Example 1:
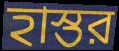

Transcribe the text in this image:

হাস্তর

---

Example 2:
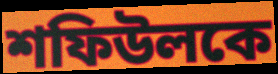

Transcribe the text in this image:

শফিউলকে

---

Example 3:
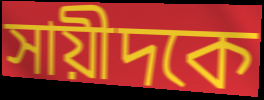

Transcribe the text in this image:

সায়ীদকে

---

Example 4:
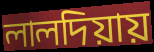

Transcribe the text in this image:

লালদিয়ায়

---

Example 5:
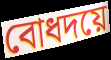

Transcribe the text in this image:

বোধদয়ে